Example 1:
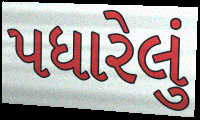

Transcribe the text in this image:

પધારેલું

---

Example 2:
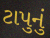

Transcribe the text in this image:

ટાપુનું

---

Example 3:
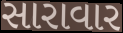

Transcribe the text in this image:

સારાવાર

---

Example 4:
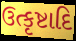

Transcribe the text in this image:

ઉત્કૃષ્ટાદિ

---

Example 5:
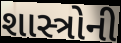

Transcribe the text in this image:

શાસ્ત્રોની